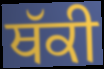
ਥੱਕੀ